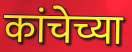
कांचेच्या